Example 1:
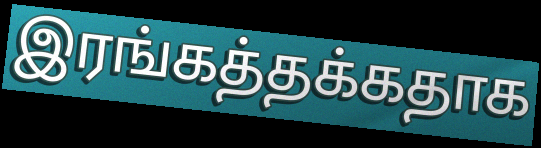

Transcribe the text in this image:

இரங்கத்தக்கதாக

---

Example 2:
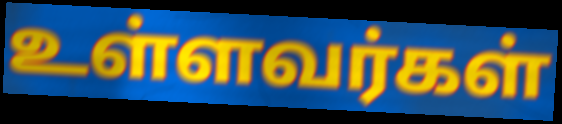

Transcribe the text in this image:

உள்ளவர்கள்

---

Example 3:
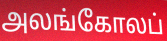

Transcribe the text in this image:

அலங்கோலப்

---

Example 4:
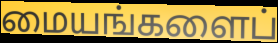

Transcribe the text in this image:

மையங்களைப்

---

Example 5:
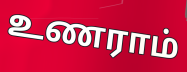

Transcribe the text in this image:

உணராம்